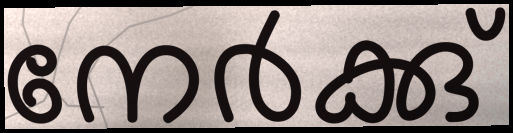
നേർക്കു്